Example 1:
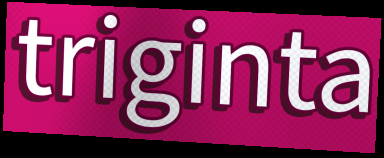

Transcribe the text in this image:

triginta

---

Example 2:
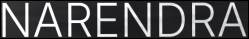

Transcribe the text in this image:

NARENDRA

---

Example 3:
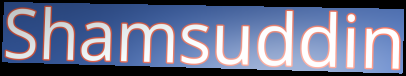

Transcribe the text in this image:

Shamsuddin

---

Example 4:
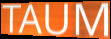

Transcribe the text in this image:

TAUM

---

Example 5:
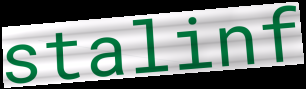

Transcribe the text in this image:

stalinf